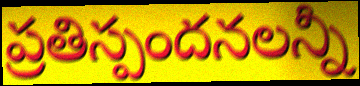
ప్రతిస్పందనలన్నీ